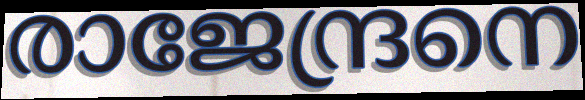
രാജേന്ദ്രനെ